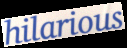
hilarious